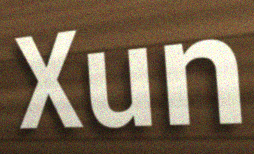
Xun